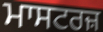
ਮਾਸਟਰਜ਼